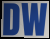
DW